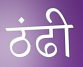
ठंढी